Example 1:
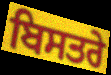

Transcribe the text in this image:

ਬਿਸਤਰੇ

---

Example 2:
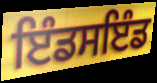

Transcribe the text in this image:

ਇੰਡਸਇੰਡ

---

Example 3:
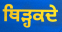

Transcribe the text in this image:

ਥਿੜ੍ਹਕਦੇ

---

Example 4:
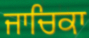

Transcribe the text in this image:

ਜਾਚਿਕਾ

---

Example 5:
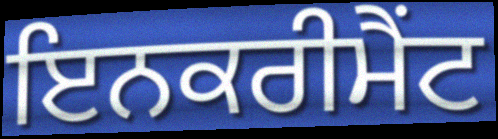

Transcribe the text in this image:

ਇਨਕਰੀਮੈਂਟ